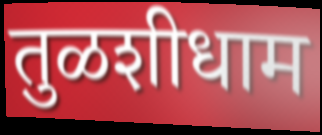
तुळशीधाम